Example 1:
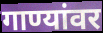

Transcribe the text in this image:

गाण्यांवर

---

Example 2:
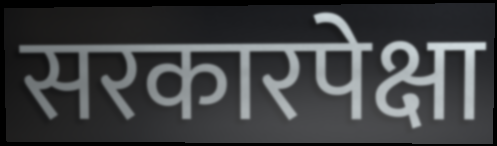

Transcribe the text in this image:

सरकारपेक्षा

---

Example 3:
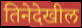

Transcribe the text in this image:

तिनेदेखील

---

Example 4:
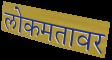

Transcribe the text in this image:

लोकमतावर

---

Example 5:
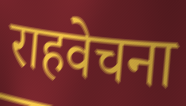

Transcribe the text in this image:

राहवेचना